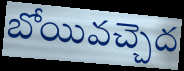
బోయివచ్చెద